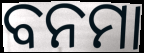
ବନମା